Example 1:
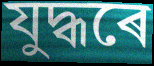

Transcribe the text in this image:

যুদ্ধৰে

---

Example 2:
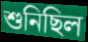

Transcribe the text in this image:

শুনিছিল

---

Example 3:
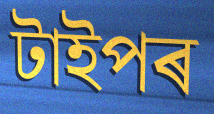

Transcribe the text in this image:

টাইপৰ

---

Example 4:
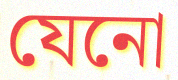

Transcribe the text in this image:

যেনো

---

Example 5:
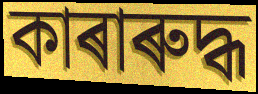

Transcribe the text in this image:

কাৰাৰুদ্ধ